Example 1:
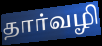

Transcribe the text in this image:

தார்வழி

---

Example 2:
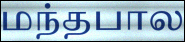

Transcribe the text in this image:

மந்தபால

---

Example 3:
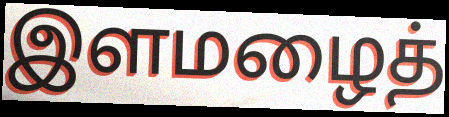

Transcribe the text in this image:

இளமழைத்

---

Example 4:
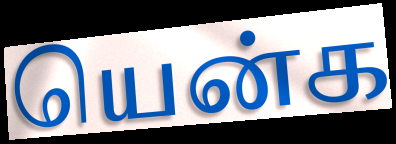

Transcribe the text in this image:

யென்க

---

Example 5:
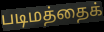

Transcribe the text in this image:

படிமத்தைக்